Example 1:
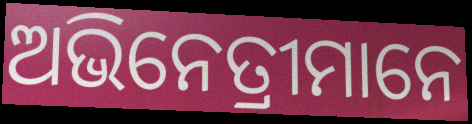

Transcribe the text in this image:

ଅଭିନେତ୍ରୀମାନେ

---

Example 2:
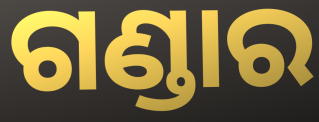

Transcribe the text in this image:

ଗଣ୍ଡାର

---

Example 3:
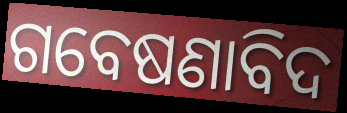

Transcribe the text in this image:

ଗବେଷଣାବିଦ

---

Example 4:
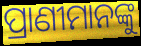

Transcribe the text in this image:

ପ୍ରାଣୀମାନଙ୍କୁ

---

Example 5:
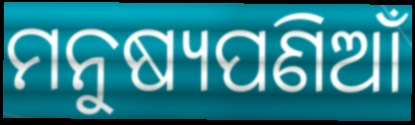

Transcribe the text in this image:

ମନୁଷ୍ୟପଣିଆଁ